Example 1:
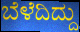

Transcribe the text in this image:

ಬೆಳೆದಿದ್ದು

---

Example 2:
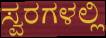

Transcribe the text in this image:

ಸ್ವರಗಳಲ್ಲಿ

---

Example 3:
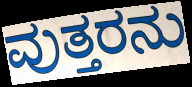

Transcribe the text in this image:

ವುತ್ತರನು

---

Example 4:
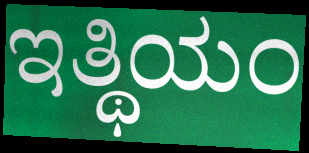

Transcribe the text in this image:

ಇತ್ಥಿಯಂ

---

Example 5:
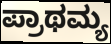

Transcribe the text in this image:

ಪ್ರಾಥಮ್ಯ